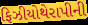
ફિઝીયોથેરાપીની